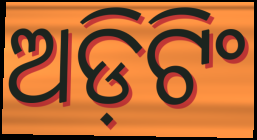
ଅଡ଼ିଟିଂ